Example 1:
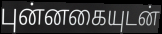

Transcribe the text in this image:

புன்னகையுடன்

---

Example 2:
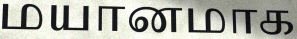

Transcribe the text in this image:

மயானமாக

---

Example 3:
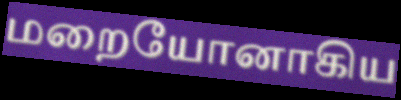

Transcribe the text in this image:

மறையோனாகிய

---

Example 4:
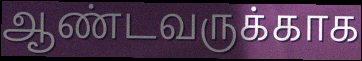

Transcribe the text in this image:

ஆண்டவருக்காக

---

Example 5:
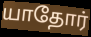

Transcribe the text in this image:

யாதோர்